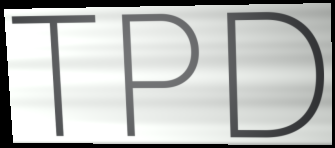
TPD